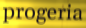
progeria